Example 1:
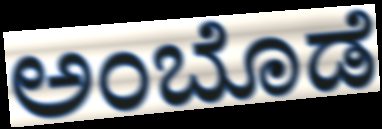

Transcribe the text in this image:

ಅಂಬೊಡೆ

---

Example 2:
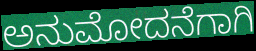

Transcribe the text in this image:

ಅನುಮೋದನೆಗಾಗಿ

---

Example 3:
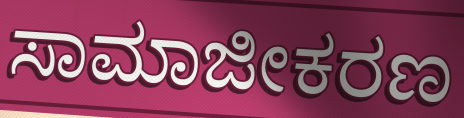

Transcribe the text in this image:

ಸಾಮಾಜೀಕರಣ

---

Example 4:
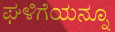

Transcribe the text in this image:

ಘಳಿಗೆಯನ್ನೂ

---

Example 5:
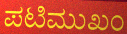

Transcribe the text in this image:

ಪಟಿಮುಖಂ